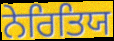
ਨੇਰਿਤਿਯ